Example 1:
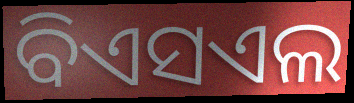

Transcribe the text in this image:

ବିଏସଏଲ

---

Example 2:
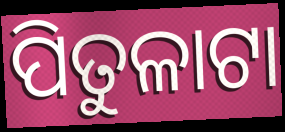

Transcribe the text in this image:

ପିତୁଳାଟା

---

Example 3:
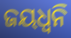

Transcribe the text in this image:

ଜୟଧ୍ଵନି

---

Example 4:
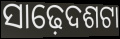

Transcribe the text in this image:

ସାଢ଼େଦଶଟା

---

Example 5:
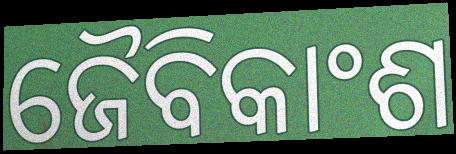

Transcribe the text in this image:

ଜୈବିକାଂଶ